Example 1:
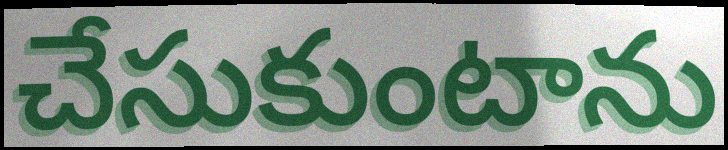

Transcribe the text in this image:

చేసుకుంటాను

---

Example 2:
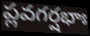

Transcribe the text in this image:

ప్లవగర్షభాః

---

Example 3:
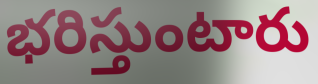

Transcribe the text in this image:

భరిస్తుంటారు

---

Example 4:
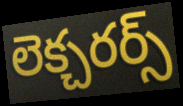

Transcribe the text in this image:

లెక్చరర్స్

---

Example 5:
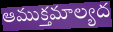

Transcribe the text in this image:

ఆముక్తమాల్యద